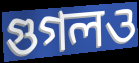
গুগলও